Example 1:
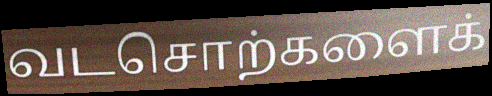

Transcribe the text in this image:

வடசொற்களைக்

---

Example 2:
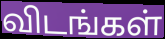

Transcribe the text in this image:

விடங்கள்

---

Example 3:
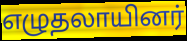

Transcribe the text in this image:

எழுதலாயினர்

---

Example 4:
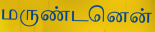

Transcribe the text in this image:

மருண்டனென்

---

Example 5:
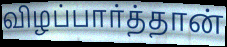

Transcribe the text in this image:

விழப்பார்த்தான்